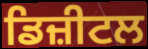
ਡਿਜ਼ੀਟਲ